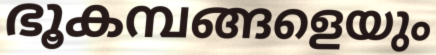
ഭൂകമ്പങ്ങളെയും